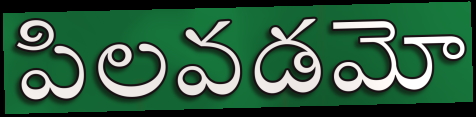
పిలవడమో